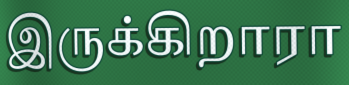
இருக்கிறாரா